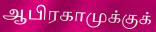
ஆபிரகாமுக்குக்